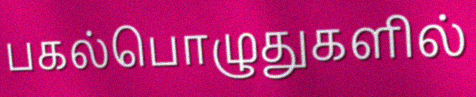
பகல்பொழுதுகளில்